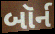
બૉર્ન